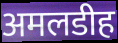
अमलडीह